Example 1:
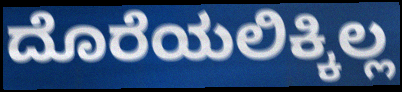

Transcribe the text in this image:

ದೊರೆಯಲಿಕ್ಕಿಲ್ಲ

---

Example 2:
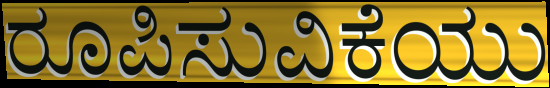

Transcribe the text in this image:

ರೂಪಿಸುವಿಕೆಯು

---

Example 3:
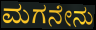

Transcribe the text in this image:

ಮಗನೇನು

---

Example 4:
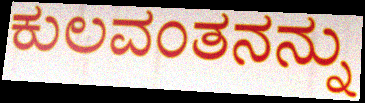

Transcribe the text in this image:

ಕುಲವಂತನನ್ನು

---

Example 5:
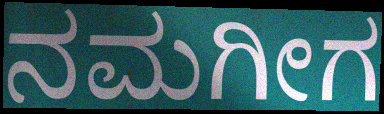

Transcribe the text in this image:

ನಮಗೀಗ